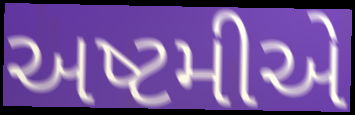
અષ્ટમીએ